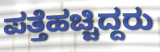
ಪತ್ತೆಹಚ್ಚಿದ್ದರು